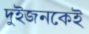
দুইজনকেই